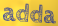
adda